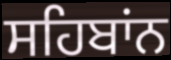
ਸਹਿਬਾਂਨ